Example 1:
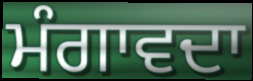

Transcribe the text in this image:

ਮੰਗਾਵਦਾ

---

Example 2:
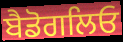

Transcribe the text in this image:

ਬੈਡੋਗਲਿਓ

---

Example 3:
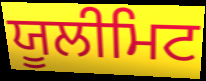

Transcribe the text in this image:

ਯੂਲੀਮਿਟ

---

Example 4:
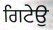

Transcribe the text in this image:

ਗਿਟੇਉ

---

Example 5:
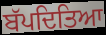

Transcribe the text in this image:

ਬੱਪਦਿਤਿਆ